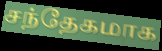
சந்தேகமாக